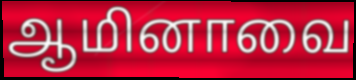
ஆமினாவை